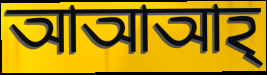
আআআহ্